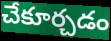
చేకూర్చడం